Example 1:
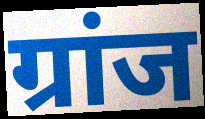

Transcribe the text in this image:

ग्रांज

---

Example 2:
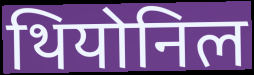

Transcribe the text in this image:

थियोनिल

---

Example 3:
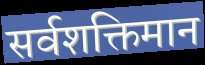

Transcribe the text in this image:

सर्वशक्तिमान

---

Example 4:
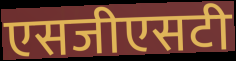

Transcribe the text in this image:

एसजीएसटी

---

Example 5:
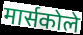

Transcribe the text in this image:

मार्सकोले